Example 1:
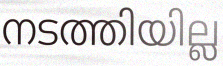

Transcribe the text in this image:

നടത്തിയില്ല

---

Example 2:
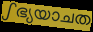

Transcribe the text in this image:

ഽഭ്യയാചത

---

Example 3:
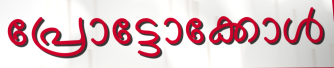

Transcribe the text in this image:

പ്രോട്ടോക്കോൾ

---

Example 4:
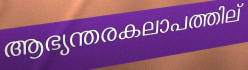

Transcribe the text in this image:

ആഭ്യന്തരകലാപത്തില്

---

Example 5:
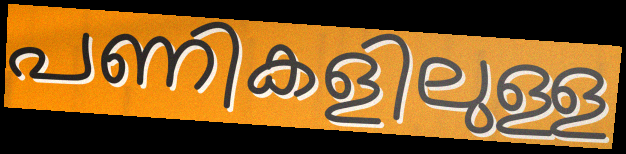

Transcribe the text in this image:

പണികളിലുള്ള